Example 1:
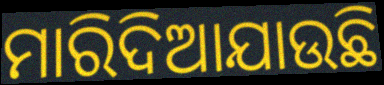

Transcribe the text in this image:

ମାରିଦିଆଯାଉଛି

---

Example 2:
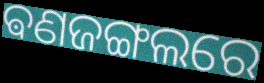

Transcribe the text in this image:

ଵଣଜଙ୍ଗଲରେ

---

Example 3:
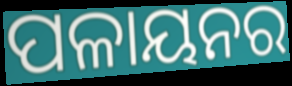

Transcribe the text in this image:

ପଳାୟନର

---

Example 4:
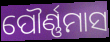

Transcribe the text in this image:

ପୌର୍ଣ୍ଣମାସ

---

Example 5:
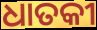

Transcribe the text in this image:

ଧାତକୀ